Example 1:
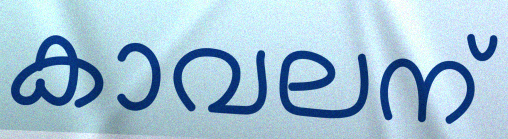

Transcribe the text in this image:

കാവലന്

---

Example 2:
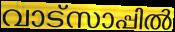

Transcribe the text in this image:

വാട്സാപ്പിൽ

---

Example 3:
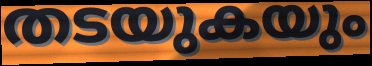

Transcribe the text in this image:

തടയുകയും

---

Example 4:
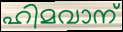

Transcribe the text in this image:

ഹിമവാന്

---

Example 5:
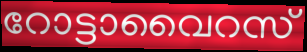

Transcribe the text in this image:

റോട്ടാവൈറസ്